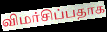
விமர்சிப்பதாக